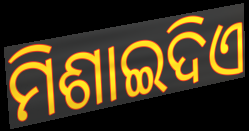
ମିଶାଇଦିଏ